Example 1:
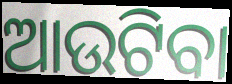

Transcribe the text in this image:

ଆଉଟିବା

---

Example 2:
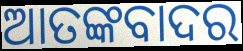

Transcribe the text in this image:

ଆତଙ୍କବାଦର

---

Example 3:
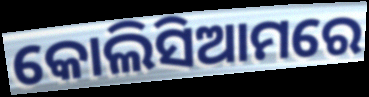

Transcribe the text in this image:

କୋଲିସିଆମରେ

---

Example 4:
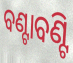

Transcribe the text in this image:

ବଣ୍ଟାବଣ୍ଟି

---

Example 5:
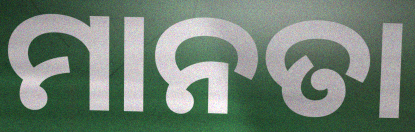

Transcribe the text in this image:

ମାନତା